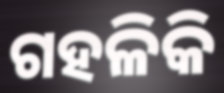
ଗହଳିକି